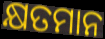
କ୍ଷତମାନ